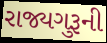
રાજ્યગુરૂની